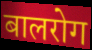
बालरोग